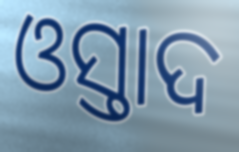
ଓସ୍ତାଦ